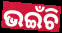
ଭଇଁଚି